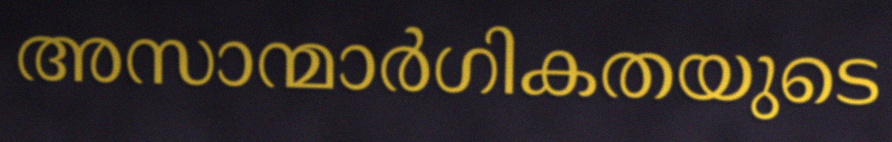
അസാന്മാർഗികതയുടെ